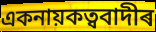
একনায়কত্ববাদীৰ